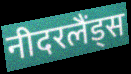
नीदरलैंड्स